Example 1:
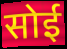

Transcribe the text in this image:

सोई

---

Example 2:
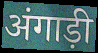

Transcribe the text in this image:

अंगाड़ी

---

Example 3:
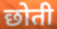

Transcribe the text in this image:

छोती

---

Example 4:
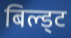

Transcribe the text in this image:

बिल्ड्ट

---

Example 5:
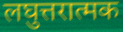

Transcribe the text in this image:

लघुत्तरात्मक